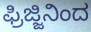
ಫ್ರಿಜ್ಜಿನಿಂದ